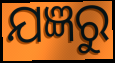
ଯଜ୍ଞରୁ